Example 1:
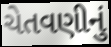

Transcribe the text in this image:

ચેતવણીનું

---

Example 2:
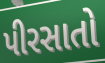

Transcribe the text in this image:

પીરસાતો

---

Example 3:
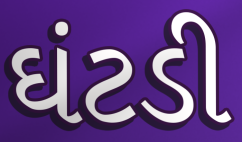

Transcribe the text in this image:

ઘંટડી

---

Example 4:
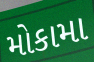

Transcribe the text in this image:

મોકામા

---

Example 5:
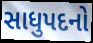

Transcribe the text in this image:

સાધુપદનો